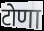
टोणा